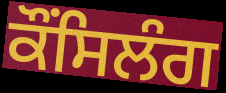
ਕੌਂਸਿਲੰਗ